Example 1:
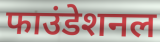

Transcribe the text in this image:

फाउंडेशनल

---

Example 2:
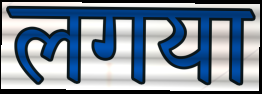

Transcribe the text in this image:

लगया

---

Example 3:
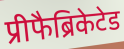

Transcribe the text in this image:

प्रीफैब्रिकेटेड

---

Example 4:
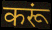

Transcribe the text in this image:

करूं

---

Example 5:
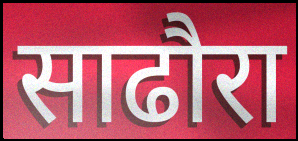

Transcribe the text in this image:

साढौरा